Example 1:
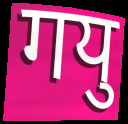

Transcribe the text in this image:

गयु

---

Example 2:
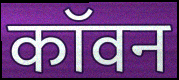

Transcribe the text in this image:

कॉवन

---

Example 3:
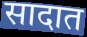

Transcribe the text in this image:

सादात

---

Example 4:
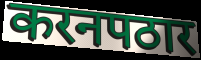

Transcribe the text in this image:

करनपठार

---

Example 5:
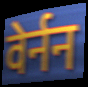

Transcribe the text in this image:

वेर्नन